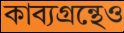
কাব্যগ্রন্থেও